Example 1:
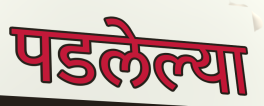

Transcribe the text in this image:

पडलेल्या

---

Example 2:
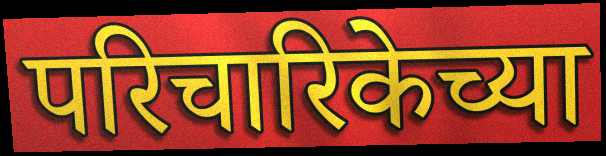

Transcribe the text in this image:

परिचारिकेच्या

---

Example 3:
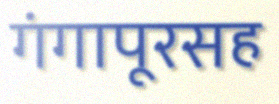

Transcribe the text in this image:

गंगापूरसह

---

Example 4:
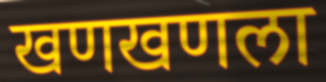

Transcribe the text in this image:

खणखणला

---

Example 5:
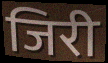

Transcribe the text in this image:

जिरी